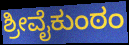
ಶ್ರೀವೈಕುಂಠಂ